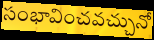
సంభావించవచ్చునో